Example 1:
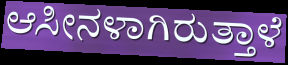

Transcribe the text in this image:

ಆಸೀನಳಾಗಿರುತ್ತಾಳೆ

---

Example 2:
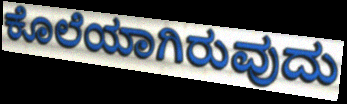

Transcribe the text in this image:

ಕೊಲೆಯಾಗಿರುವುದು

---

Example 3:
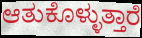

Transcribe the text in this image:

ಆತುಕೊಳ್ಳುತ್ತಾರೆ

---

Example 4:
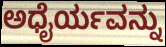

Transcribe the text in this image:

ಅಧೈರ್ಯವನ್ನು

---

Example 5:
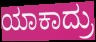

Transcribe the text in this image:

ಯಾಕಾದ್ರು